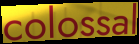
colossal